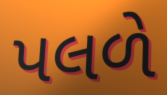
પલળે